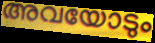
അവയോടും